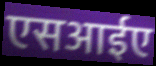
एसआईए